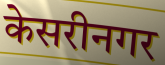
केसरीनगर